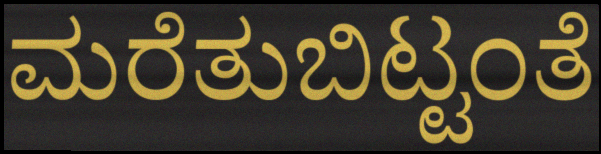
ಮರೆತುಬಿಟ್ಟಂತೆ